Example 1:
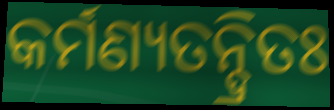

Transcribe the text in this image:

କର୍ମଣ୍ୟତନ୍ଦ୍ରିତଃ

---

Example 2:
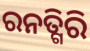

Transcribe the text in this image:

ରନତ୍ଗିରି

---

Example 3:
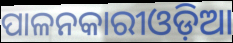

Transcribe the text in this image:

ପାଳନକାରୀଓଡ଼ିଆ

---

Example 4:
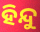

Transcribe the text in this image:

ହିନ୍ଦୁ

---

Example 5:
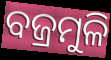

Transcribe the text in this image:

ବଜ୍ରମୁଳି